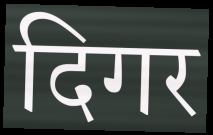
दिगर